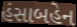
હંસાબહેન